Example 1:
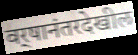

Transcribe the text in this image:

वर्षानंतरदेखील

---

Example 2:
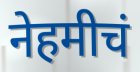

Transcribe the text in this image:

नेहमीचं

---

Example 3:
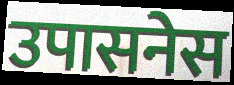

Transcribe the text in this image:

उपासनेस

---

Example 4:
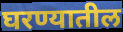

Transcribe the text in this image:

घरण्यातील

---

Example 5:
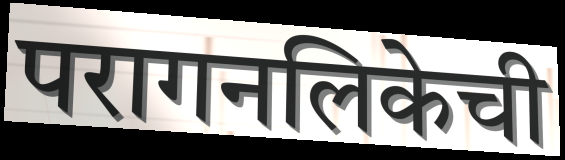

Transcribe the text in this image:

परागनलिकेची